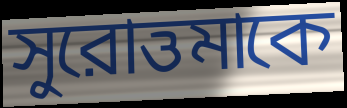
সুরোত্তমাকে